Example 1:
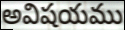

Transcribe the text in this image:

అవిషయము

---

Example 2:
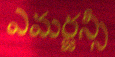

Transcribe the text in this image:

ఎమర్జన్సీ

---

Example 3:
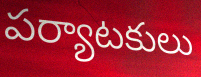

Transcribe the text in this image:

పర్యాటకులు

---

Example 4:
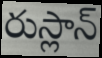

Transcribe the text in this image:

రుస్లాన్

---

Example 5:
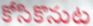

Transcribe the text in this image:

కోసికొనుట